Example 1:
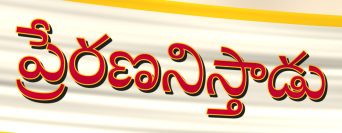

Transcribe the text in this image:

ప్రేరణనిస్తాడు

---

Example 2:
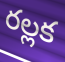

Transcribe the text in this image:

రల్లక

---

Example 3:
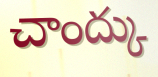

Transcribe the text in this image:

చాంద్కు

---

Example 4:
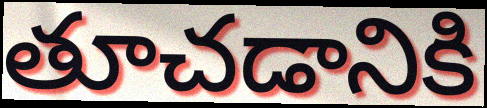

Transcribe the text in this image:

తూచడానికి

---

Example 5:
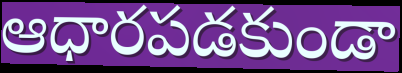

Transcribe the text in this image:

ఆధారపడకుండా